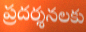
ప్రదర్శనలకు